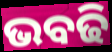
ଭବଢି